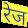
रेज